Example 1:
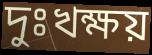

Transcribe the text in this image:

দুঃখক্ষয়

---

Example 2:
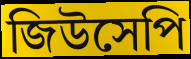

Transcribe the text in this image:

জিউসেপি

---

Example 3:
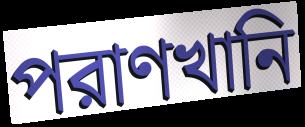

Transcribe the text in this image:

পরাণখানি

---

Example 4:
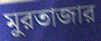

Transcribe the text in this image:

মুরতাজার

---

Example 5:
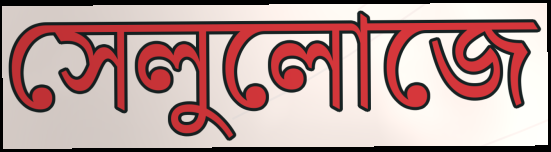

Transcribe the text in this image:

সেলুলোজে